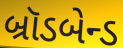
બ્રૉડબેન્ડ